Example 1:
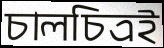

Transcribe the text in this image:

চালচিত্রই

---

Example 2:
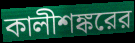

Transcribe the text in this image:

কালীশঙ্করের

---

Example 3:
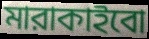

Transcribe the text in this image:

মারাকাইবো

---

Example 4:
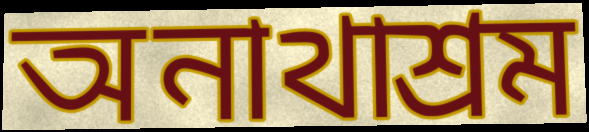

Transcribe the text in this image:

অনাথাশ্রম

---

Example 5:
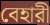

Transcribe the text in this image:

বেহারী